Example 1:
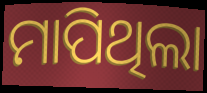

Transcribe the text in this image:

ମାପିଥିଲା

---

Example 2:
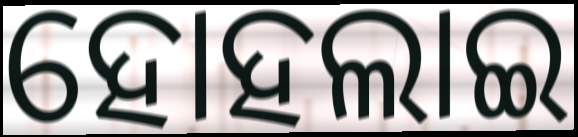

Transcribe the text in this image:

ହୋହଲାଇ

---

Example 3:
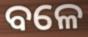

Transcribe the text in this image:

ବଳେ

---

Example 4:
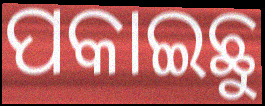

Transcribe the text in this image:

ପକାଇଛୁ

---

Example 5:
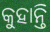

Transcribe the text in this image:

କୁହାନ୍ତି